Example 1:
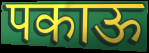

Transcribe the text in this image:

पकाऊ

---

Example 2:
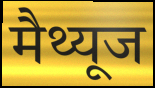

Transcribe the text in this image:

मैथ्यूज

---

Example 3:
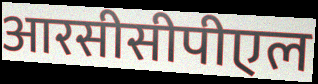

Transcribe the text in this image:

आरसीसीपीएल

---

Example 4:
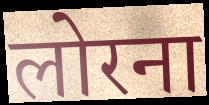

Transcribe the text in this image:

लोरना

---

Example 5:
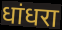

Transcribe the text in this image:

धांधरा